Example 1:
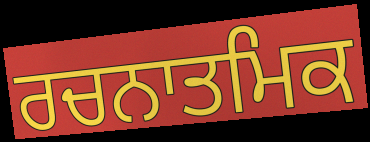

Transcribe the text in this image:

ਰਚਨਾਤਮਿਕ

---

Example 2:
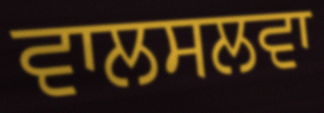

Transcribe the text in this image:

ਵਾਲਸਲਵਾ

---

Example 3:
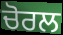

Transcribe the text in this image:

ਚੋਰਲ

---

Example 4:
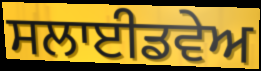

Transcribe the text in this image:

ਸਲਾਈਡਵੇਅ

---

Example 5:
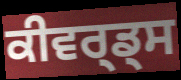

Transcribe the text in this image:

ਕੀਵਰ੍ਡ੍ਸ